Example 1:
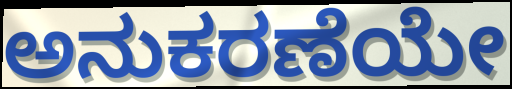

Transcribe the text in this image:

ಅನುಕರಣೆಯೇ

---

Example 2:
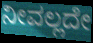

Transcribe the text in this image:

ನೀವಲ್ಲದೇ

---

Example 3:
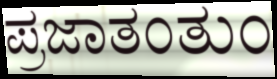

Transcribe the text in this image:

ಪ್ರಜಾತಂತುಂ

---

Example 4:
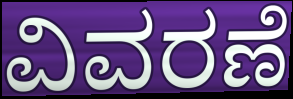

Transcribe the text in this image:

ವಿವರಣೆ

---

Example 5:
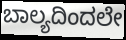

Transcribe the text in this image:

ಬಾಲ್ಯದಿಂದಲೇ